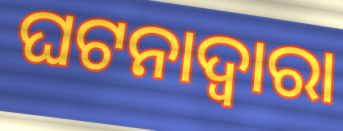
ଘଟନାଦ୍ୱାରା